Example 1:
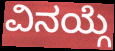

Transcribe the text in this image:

ವಿನಯ್ಗೆ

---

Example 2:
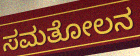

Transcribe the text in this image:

ಸಮತೋಲನ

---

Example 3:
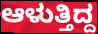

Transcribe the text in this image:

ಆಳುತ್ತಿದ್ದ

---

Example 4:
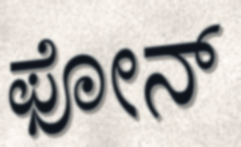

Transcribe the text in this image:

ಫೋನ್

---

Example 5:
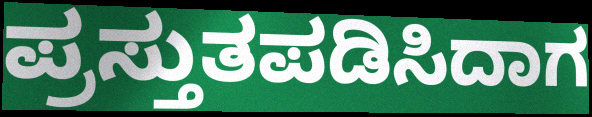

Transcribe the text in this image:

ಪ್ರಸ್ತುತಪಡಿಸಿದಾಗ